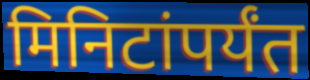
मिनिटांपर्यंत